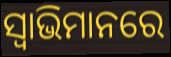
ସ୍ୱାଭିମାନରେ